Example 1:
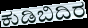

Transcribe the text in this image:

ಕುಡಿಬಿದಿರ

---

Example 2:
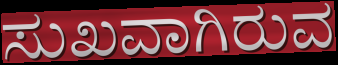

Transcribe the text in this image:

ಸುಖವಾಗಿರುವ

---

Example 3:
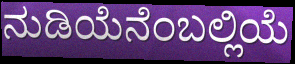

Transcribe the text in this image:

ನುಡಿಯೆನೆಂಬಲ್ಲಿಯೆ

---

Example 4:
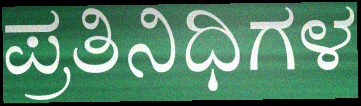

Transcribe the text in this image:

ಪ್ರತಿನಿಧಿಗಳ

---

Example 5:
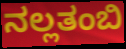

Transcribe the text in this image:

ನಲ್ಲತಂಬಿ